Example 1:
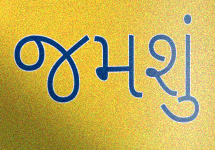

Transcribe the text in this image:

જમશું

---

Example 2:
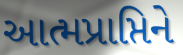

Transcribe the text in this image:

આત્મપ્રાપ્તિને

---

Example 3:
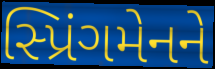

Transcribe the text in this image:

સ્પ્રિંગમેનને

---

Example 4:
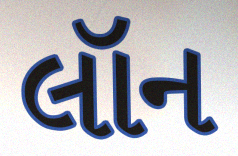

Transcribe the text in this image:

લૉન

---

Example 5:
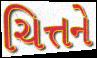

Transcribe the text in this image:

ચિત્તને